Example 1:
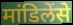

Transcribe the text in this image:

मांडिलेंसे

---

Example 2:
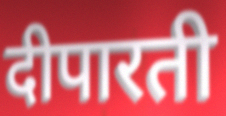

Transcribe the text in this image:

दीपारती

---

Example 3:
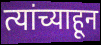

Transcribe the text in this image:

त्यांच्याहून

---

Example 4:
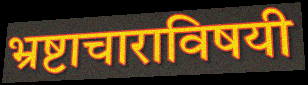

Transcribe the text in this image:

भ्रष्टाचाराविषयी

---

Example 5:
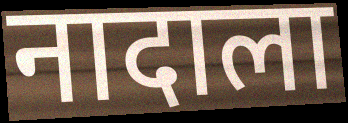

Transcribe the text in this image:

नादाला